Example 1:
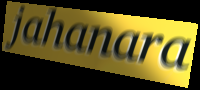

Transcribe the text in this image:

jahanara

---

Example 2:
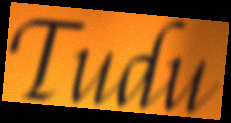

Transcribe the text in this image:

Tudu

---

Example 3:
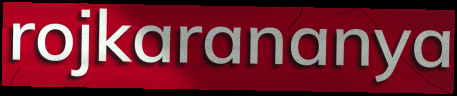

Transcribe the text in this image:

rojkarananya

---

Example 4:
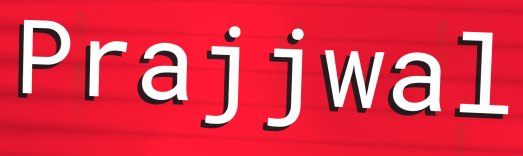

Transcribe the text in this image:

Prajjwal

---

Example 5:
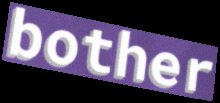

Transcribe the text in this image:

bother